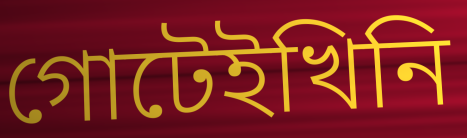
গোটেইখিনি